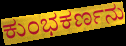
ಕುಂಭಕರ್ಣನು